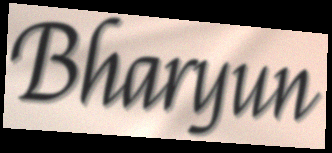
Bharyun